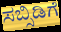
ಸಬ್ಸಿಡಿಗೆ